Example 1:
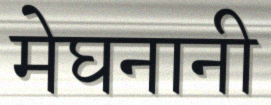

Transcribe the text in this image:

मेघनानी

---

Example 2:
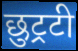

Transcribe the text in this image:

छुट्रटी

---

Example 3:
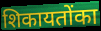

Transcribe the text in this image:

शिकायतोंका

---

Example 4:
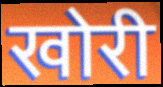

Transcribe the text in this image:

खोरी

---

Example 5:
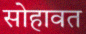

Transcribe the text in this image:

सोहावत